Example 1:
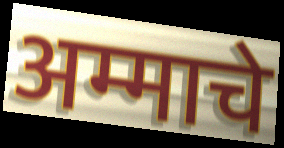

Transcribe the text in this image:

अम्माचे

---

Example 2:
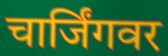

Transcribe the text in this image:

चार्जिंगवर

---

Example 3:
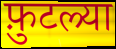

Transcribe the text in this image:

फ़ुटल्या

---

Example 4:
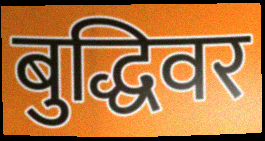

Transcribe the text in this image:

बुद्धिवर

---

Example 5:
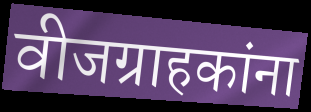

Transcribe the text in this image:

वीजग्राहकांना